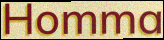
Homma